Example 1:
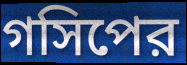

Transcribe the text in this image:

গসিপের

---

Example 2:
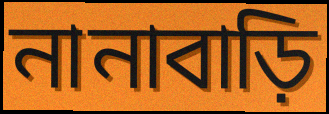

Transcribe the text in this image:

নানাবাড়ি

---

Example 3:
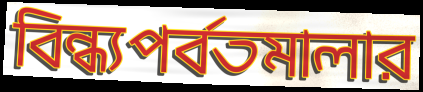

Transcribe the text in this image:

বিন্ধ্যপর্বতমালার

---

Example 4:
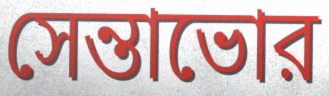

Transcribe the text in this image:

সেন্তাভোর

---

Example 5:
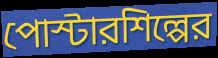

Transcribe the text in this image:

পোস্টারশিল্পের